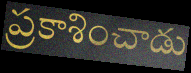
ప్రకాశించాడు